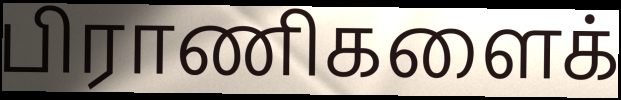
பிராணிகளைக்